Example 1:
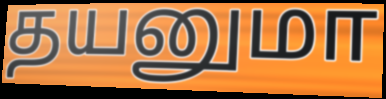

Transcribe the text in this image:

தயனுமா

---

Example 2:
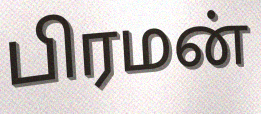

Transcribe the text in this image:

பிரமன்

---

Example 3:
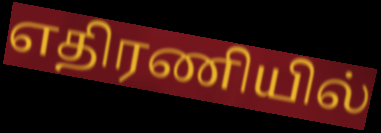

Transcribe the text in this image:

எதிரணியில்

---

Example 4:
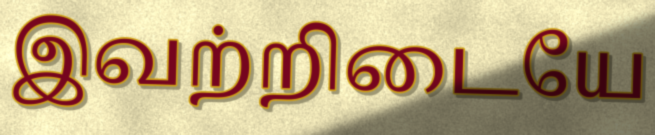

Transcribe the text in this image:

இவற்றிடையே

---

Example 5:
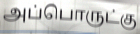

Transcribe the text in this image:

அப்பொருட்கு